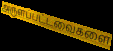
அருளப்பட்டவைகளை